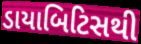
ડાયાબિટિસથી